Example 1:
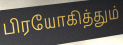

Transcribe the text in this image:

பிரயோகித்தும்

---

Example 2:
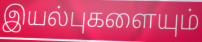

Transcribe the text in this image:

இயல்புகளையும்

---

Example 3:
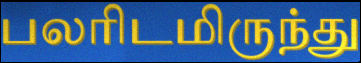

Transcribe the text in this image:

பலரிடமிருந்து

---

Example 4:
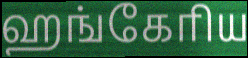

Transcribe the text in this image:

ஹங்கேரிய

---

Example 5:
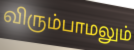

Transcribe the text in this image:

விரும்பாமலும்